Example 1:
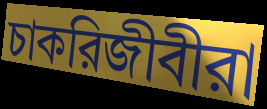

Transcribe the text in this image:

চাকরিজীবীরা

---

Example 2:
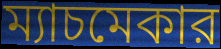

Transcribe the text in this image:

ম্যাচমেকার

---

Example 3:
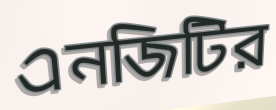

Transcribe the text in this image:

এনজিটির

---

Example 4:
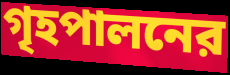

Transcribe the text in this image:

গৃহপালনের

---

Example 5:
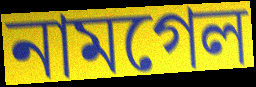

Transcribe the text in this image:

নামগেল